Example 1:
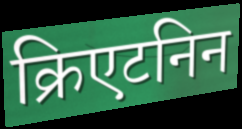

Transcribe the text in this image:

क्रिएटनिन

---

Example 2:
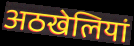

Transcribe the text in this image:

अठखेलियां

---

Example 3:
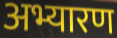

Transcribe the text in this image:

अभ्यारण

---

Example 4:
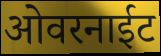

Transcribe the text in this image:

ओवरनाईट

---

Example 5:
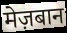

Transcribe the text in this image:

मेज़बान